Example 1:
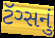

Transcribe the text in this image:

ટૅગ્સનું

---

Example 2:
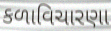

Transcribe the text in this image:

કળાવિચારણા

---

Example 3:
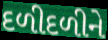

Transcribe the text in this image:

દળીદળીને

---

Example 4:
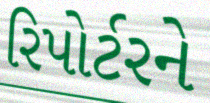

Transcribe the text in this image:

રિપોર્ટરને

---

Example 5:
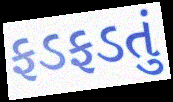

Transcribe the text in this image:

ફડફડતું